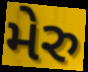
મેરુ